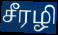
சீரழி